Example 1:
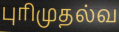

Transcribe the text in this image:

புரிமுதல்வ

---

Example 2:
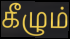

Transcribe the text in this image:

கீழும்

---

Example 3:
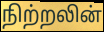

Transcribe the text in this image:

நிற்றலின்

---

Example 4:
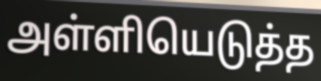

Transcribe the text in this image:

அள்ளியெடுத்த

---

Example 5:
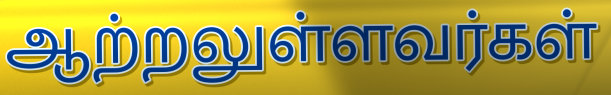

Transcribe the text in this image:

ஆற்றலுள்ளவர்கள்